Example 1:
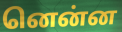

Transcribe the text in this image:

னென்ன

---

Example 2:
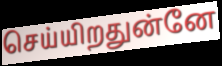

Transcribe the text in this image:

செய்யிறதுன்னே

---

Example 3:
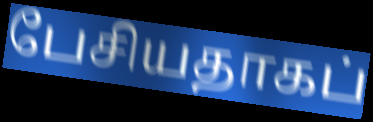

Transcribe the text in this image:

பேசியதாகப்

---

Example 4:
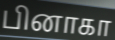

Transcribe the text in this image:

பினாகா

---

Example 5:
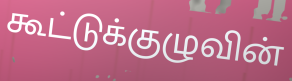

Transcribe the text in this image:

கூட்டுக்குழுவின்